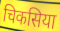
चिकसिया